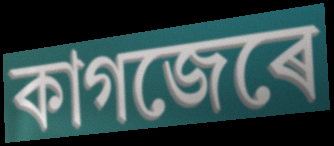
কাগজেৰে